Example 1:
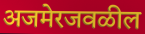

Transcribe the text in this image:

अजमेरजवळील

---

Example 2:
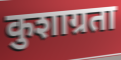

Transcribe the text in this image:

कुशाग्रता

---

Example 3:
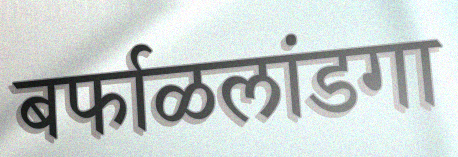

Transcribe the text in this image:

बर्फाळलांडगा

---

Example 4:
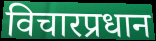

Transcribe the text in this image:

विचारप्रधान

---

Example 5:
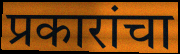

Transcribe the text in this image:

प्रकारांचा